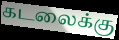
கடலைக்கு